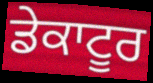
ਡੇਕਾਟੂਰ